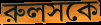
রুলসকে